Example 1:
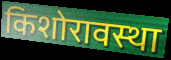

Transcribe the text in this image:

किशोरावस्था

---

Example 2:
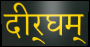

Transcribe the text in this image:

दीर्घम्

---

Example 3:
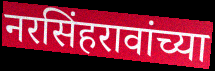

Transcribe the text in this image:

नरसिंहरावांच्या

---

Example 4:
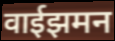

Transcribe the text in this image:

वाईझमन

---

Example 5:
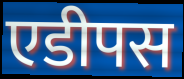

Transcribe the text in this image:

एडीपस